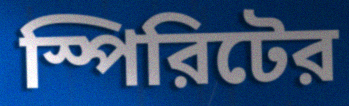
স্পিরিটের